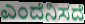
ಎಂದೆನಿಸದೆ